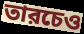
তারচেও